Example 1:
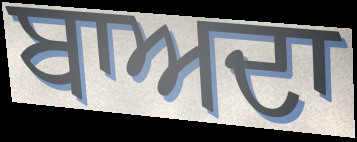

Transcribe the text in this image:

ਬਾਅਦਾ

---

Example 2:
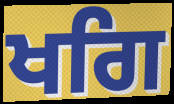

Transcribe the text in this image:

ਖਗਿ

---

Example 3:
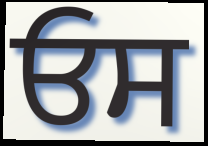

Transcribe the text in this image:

ਓਸ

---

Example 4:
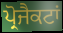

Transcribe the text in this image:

ਪ੍ਰੋਜੈਕਟਾਂ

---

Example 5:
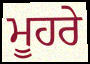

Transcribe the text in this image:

ਮੂਹਰੇ